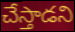
చేస్తాడని